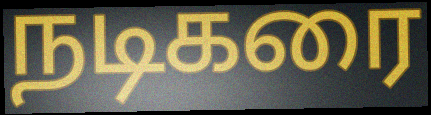
நடிகரை